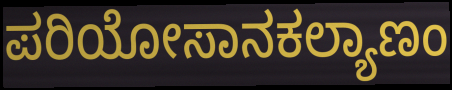
ಪರಿಯೋಸಾನಕಲ್ಯಾಣಂ